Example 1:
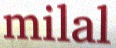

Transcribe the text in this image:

milal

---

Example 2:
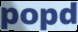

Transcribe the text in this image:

popd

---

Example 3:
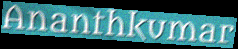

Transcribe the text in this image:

Ananthkumar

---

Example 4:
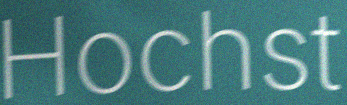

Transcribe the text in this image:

Hochst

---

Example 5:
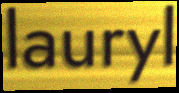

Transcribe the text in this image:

lauryl